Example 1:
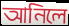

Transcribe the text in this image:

আনিলে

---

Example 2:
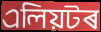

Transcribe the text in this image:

এলিয়টৰ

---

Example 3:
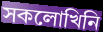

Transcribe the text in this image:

সকলোখিনি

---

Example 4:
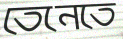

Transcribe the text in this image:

তেনেতে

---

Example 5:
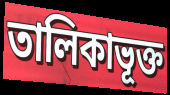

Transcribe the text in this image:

তালিকাভূক্ত